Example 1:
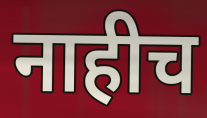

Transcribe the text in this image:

नाहीच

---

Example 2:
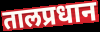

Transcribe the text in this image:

तालप्रधान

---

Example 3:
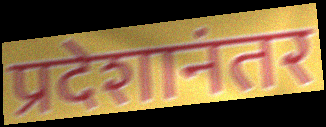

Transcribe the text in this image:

प्रदेशानंतर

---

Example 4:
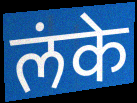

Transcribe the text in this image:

लंके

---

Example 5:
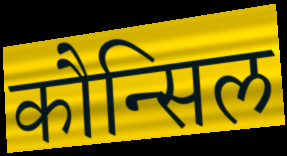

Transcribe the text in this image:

कौन्सिल